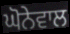
ਘੋਨੇਵਾਲ